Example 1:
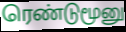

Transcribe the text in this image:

ரெண்டுமூனு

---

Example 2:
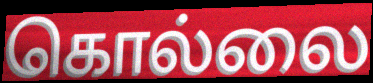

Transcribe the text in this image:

கொல்லை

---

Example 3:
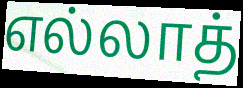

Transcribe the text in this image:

எல்லாத்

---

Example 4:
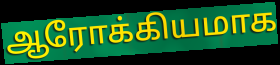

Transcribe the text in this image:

ஆரோக்கியமாக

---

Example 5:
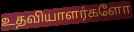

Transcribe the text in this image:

உதவியாளர்களோ